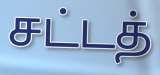
சட்டத்